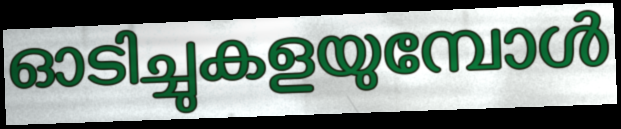
ഓടിച്ചുകളയുമ്പോൾ